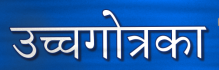
उच्चगोत्रका